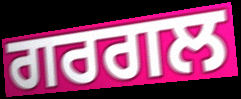
ਗਰਗਲ